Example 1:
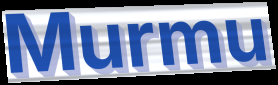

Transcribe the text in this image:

Murmu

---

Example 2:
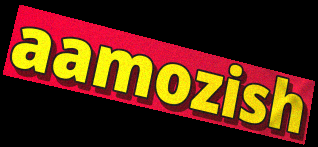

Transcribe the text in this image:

aamozish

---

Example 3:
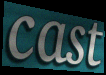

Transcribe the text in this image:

cast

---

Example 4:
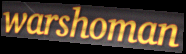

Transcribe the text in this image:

warshoman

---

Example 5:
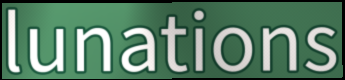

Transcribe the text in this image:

lunations